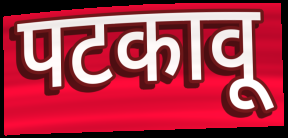
पटकावू